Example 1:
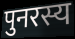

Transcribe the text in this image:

पुनरस्य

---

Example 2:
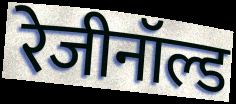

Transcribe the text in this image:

रेजीनॉल्ड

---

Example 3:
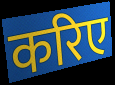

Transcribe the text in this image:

करिए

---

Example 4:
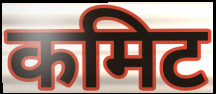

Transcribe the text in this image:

कमिट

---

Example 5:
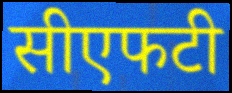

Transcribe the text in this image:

सीएफटी